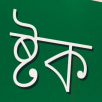
ষ্টক